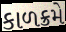
કાળક્રમે